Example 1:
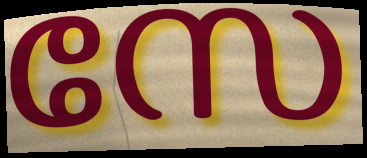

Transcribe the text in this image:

സേ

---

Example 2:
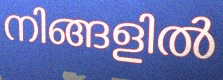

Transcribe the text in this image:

നിങ്ങളിൽ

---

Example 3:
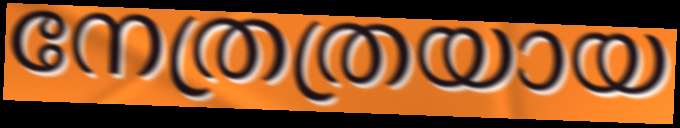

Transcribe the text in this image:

നേത്രത്രയായ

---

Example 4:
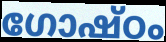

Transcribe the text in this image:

ഗോഷ്ഠം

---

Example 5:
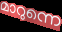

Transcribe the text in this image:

മാറുന്നെ